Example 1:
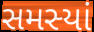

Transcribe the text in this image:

સમસ્યાં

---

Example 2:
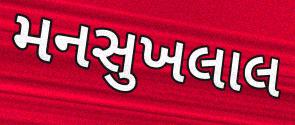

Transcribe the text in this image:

મનસુખલાલ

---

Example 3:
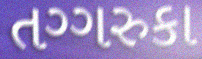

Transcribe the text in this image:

તગ્ગરુકા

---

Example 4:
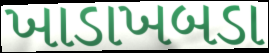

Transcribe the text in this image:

ખાડાખબડા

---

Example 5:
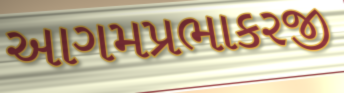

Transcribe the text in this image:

આગમપ્રભાકરજી